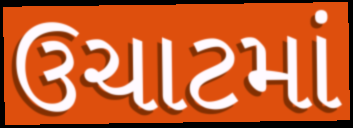
ઉચાટમાં